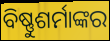
ବିଷ୍ଣୁଶର୍ମାଙ୍କର